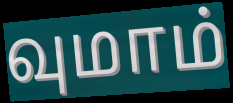
வுமாம்